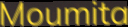
Moumita